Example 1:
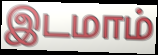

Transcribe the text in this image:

இடமாம்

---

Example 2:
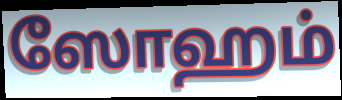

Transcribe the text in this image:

ஸோஹம்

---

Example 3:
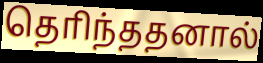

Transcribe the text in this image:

தெரிந்ததனால்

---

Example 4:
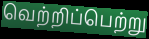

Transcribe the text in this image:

வெற்றிப்பெற்று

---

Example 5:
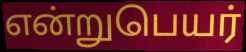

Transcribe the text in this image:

என்றுபெயர்